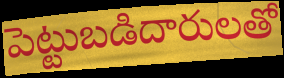
పెట్టుబడిదారులతో